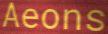
Aeons